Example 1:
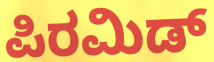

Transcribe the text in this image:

ಪಿರಮಿಡ್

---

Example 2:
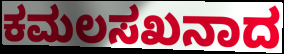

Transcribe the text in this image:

ಕಮಲಸಖನಾದ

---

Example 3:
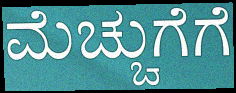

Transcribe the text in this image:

ಮೆಚ್ಚುಗೆಗೆ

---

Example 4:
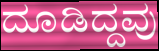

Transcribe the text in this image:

ದೂಡಿದ್ದವು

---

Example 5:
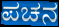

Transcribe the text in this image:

ಪಚನ